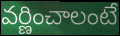
వర్ణించాలంటే